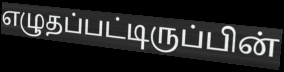
எழுதப்பட்டிருப்பின்